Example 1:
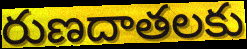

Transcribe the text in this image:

రుణదాతలకు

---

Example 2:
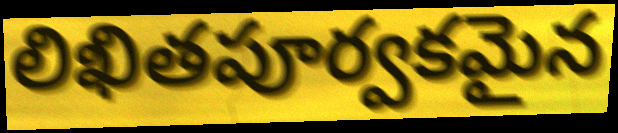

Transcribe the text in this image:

లిఖితపూర్వకమైన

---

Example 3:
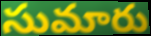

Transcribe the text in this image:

సుమారు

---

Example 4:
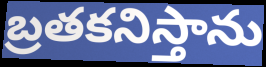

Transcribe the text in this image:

బ్రతకనిస్తాను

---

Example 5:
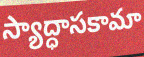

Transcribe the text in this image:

స్యాద్ధాసకామా